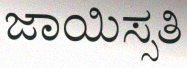
ಜಾಯಿಸ್ಸತಿ